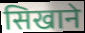
सिखाने